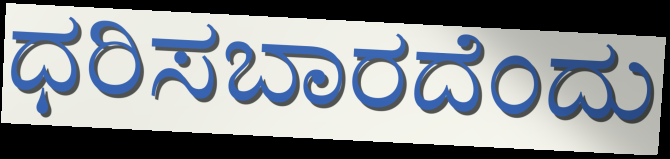
ಧರಿಸಬಾರದೆಂದು